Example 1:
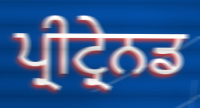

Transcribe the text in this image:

ਪ੍ਰੀਟ੍ਰੇਨਡ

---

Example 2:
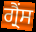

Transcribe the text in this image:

ਗ੍ਰੈਂਸ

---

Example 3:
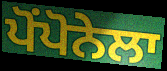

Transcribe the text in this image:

ਪੋਂਪੋਨੇਲਾ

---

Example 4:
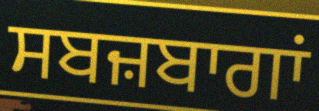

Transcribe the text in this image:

ਸਬਜ਼ਬਾਗਾਂ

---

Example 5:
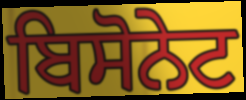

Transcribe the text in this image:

ਬਿਸੋਨੇਟ